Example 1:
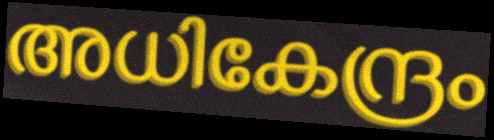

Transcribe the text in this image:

അധികേന്ദ്രം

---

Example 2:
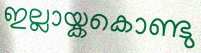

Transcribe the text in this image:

ഇല്ലായ്കകൊണ്ടു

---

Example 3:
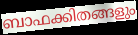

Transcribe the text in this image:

ബാഫക്കിതങ്ങളും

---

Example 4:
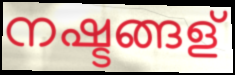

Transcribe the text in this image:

നഷ്ടങ്ങള്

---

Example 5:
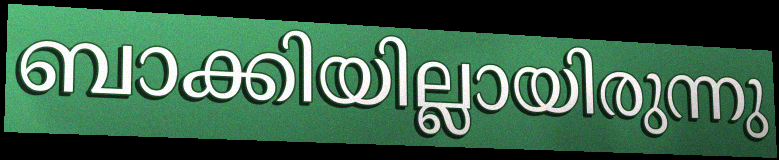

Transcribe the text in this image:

ബാക്കിയില്ലായിരുന്നു